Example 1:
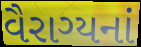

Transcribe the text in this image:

વૈરાગ્યનાં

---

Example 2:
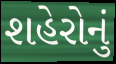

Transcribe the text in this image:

શહેરોનું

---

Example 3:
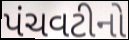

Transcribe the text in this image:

પંચવટીનો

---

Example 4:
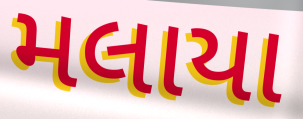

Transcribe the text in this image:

મલાયા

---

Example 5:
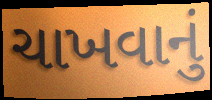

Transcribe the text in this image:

ચાખવાનું